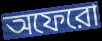
অফেরো